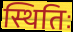
स्थितिः